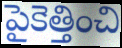
పైకెత్తించి